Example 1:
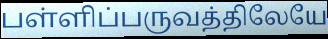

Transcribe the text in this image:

பள்ளிப்பருவத்திலேயே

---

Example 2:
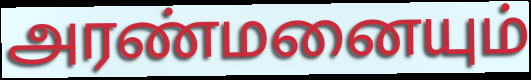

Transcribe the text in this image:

அரண்மனையும்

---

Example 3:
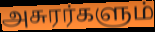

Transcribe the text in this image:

அசுரர்களும்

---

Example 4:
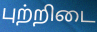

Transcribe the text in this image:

புற்றிடை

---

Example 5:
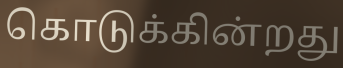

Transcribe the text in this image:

கொடுக்கின்றது